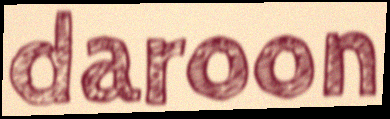
daroon